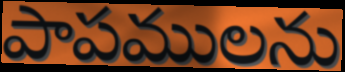
పాపములను